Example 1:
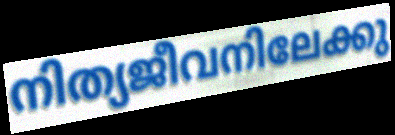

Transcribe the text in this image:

നിത്യജീവനിലേക്കു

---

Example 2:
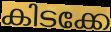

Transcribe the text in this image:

കിടക്കേ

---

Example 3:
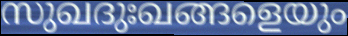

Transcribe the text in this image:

സുഖദുഃഖങ്ങളെയും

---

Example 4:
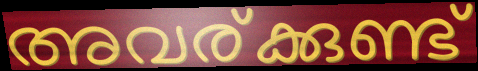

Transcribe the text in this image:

അവര്ക്കുണ്ട്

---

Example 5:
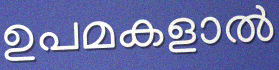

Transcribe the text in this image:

ഉപമകളാൽ